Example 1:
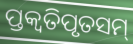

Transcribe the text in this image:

ପ୍ତକ୍ଵତିପୃତସମ୍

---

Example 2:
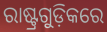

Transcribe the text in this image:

ରାଷ୍ଟ୍ରଗୁଡ଼ିକରେ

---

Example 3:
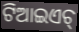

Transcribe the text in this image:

ଟିଆଇଏଚ୍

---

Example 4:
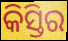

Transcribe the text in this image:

କିସ୍ତିର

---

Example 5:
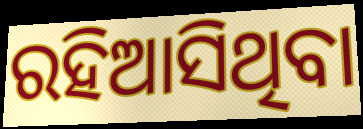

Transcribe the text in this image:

ରହିଆସିଥିବା